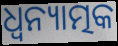
ଧ୍ୱନ୍ୟାତ୍ମକ